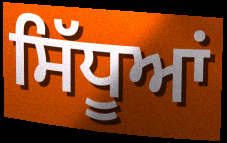
ਸਿੱਧੂਆਂ